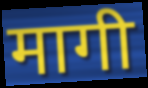
मागी